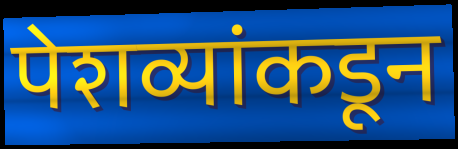
पेशव्यांकडून